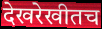
देखरेखीतच